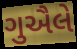
ગુઐલે